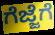
ಗೆಜ್ಜೆಗೆ